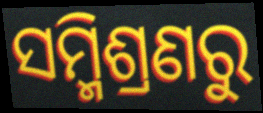
ସମ୍ମିଶ୍ରଣରୁ